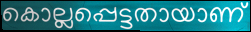
കൊല്ലപ്പെട്ടതായാണ്